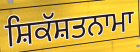
ਸ਼ਿਕੱਸ਼ਤਨਾਮਾ